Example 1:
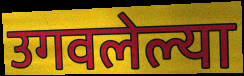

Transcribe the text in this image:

उगवलेल्या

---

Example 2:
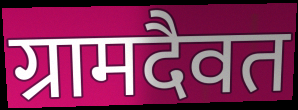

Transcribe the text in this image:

ग्रामदैवत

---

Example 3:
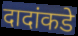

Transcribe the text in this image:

दादांकडे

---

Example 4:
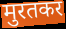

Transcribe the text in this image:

मुरतकर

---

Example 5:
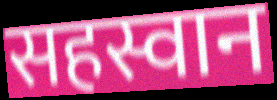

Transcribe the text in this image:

सहस्वान